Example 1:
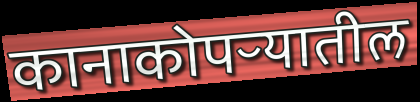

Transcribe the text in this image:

कानाकोपऱ्यातील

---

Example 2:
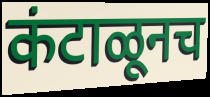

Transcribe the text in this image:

कंटाळूनच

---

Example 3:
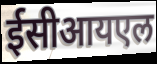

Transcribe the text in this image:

ईसीआयएल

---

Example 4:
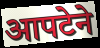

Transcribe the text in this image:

आपटेने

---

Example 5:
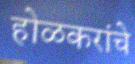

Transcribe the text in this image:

होळकरांचे